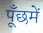
पूँछमें